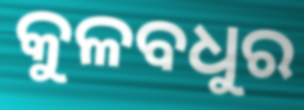
କୁଳବଧୁର